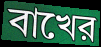
বাখের